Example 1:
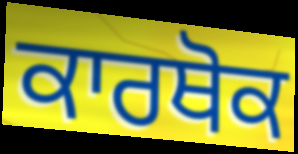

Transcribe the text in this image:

ਕਾਰਥੋਕ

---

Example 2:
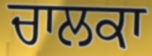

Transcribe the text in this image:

ਚਾਲਕਾ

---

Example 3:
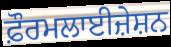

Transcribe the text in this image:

ਫ਼ੌਰਮਲਾਈਜ਼ੇਸ਼ਨ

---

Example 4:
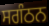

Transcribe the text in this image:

ਸਗੰਠਨ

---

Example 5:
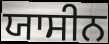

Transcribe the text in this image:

ਯਾਸੀਨ